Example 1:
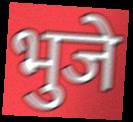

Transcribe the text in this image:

भुजे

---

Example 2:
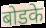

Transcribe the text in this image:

बोडके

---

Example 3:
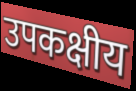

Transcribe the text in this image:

उपकक्षीय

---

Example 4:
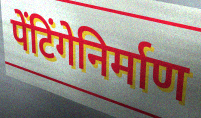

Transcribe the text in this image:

पेंटिंगेनिर्माण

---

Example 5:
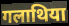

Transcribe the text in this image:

गलाथिया